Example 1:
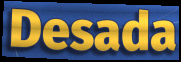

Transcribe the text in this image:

Desada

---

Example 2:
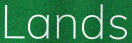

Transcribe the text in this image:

Lands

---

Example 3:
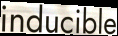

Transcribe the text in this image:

inducible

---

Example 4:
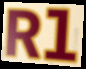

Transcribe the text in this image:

Rl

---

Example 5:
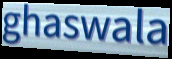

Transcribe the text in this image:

ghaswala